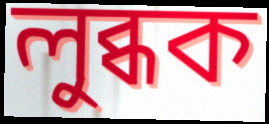
লুব্ধক